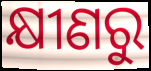
କ୍ଷୀଣରୁ